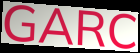
GARC